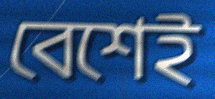
বেশেই